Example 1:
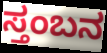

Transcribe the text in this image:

ಸ್ತಂಬನ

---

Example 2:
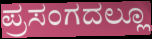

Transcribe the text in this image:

ಪ್ರಸಂಗದಲ್ಲೂ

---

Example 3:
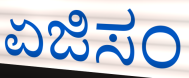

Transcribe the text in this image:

ಏಜಿಸಂ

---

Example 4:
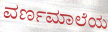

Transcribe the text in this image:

ವರ್ಣಮಾಲೆಯ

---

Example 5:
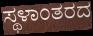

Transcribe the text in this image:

ಸ್ಥಳಾಂತರದ